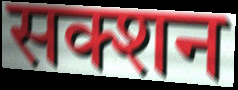
सक्शन